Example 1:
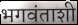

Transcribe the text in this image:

भगवंताशी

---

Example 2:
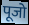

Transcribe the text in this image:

पूजो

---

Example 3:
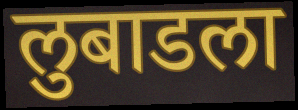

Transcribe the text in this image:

लुबाडला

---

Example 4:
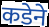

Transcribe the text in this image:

कडेने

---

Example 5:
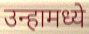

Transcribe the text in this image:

उन्हामध्ये